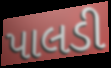
પાલડી